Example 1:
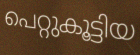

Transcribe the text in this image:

പെറ്റുകൂട്ടിയ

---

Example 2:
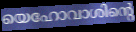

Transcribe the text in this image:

യെഹോവാശിന്റെ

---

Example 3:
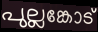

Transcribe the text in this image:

പുല്ലങ്കോട്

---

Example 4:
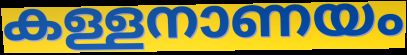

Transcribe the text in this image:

കള്ളനാണയം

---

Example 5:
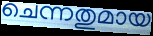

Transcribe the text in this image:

ചെന്നതുമായ